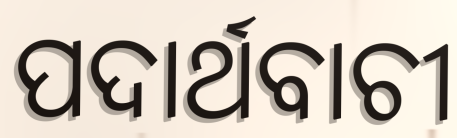
ପଦାର୍ଥବାଚୀ